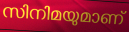
സിനിമയുമാണ്